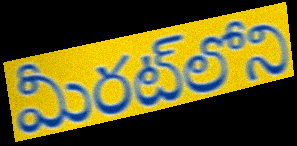
మీరట్‌లోని